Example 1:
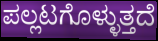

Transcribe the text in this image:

ಪಲ್ಲಟಗೊಳ್ಳುತ್ತದೆ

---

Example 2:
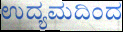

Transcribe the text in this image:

ಉದ್ಯಮದಿಂದ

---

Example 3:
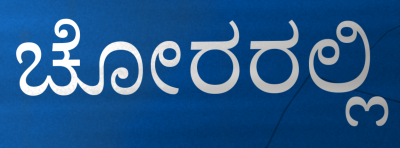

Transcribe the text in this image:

ಚೋರರಲ್ಲಿ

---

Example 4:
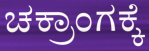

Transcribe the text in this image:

ಚಕ್ರಾಂಗಕ್ಕೆ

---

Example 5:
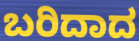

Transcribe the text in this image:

ಬರಿದಾದ